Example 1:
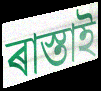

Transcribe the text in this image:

ৰাস্তাই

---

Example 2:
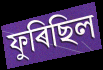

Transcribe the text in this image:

ফুৰিছিল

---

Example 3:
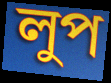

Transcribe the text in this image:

লুপ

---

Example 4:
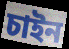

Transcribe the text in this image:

চাইন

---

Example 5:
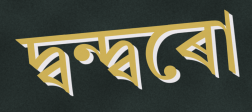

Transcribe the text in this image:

দ্বন্দ্বৰো